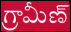
గ్రామీణ్